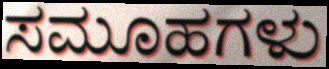
ಸಮೂಹಗಳು